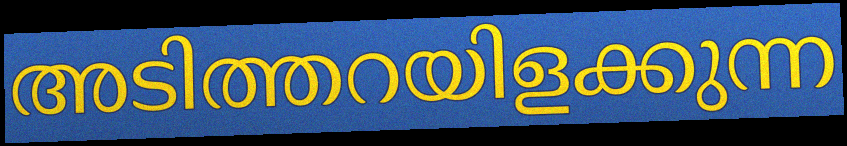
അടിത്തറയിളക്കുന്ന